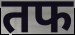
तफ